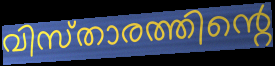
വിസ്‌താരത്തിന്റെ